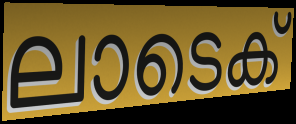
ലാടെക്